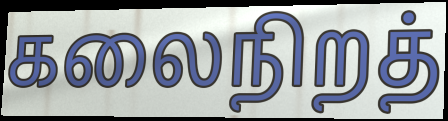
கலைநிறத்